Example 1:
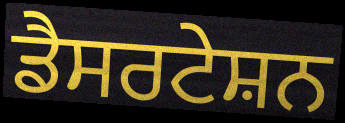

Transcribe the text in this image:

ਡੈਸਰਟੇਸ਼ਨ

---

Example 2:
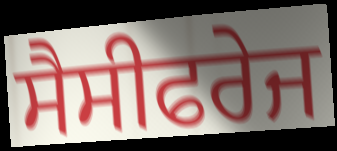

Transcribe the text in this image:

ਸੈਸੀਫਰੇਜ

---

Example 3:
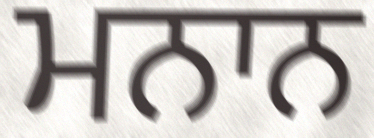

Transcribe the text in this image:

ਮਨਾਨ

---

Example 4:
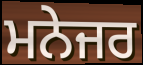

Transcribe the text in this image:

ਮਨੇਜਰ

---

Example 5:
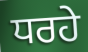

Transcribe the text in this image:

ਧਰਹੇ